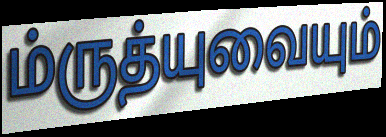
ம்ருத்யுவையும்